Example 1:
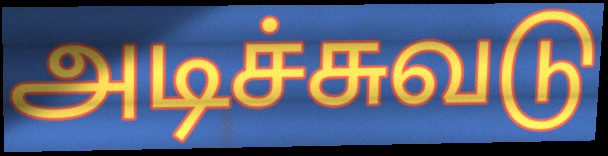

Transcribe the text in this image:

அடிச்சுவடு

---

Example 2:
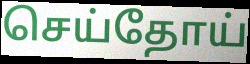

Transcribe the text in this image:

செய்தோய்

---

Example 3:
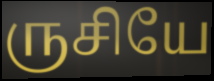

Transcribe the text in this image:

ருசியே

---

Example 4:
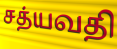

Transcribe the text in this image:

சத்யவதி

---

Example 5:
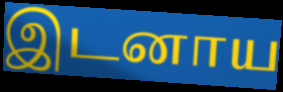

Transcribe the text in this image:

இடனாய